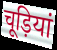
चूड़ियां